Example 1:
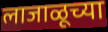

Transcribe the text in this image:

लाजाळूच्या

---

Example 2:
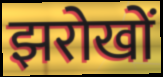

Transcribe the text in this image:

झरोखों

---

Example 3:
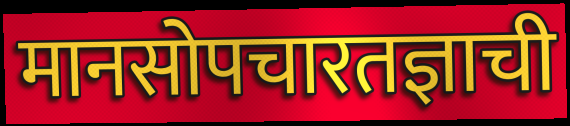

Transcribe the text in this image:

मानसोपचारतज्ञाची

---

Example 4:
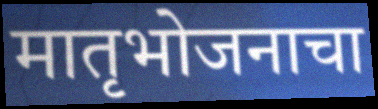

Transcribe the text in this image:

मातृभोजनाचा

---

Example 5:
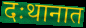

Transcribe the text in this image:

दःथानात